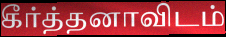
கீர்த்தனாவிடம்